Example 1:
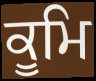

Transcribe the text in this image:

ਕੂਮਿ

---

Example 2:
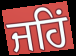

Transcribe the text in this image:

ਜਹਿਂ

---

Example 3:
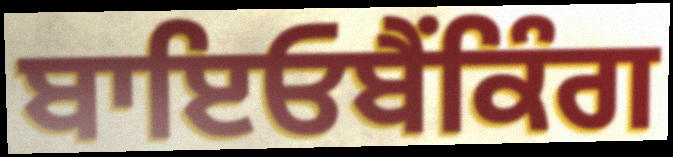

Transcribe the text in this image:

ਬਾਇਓਬੈਂਕਿੰਗ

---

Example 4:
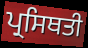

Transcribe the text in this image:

ਪ੍ਰਸਿਥਤੀ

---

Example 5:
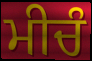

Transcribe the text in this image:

ਮੀਚੰ